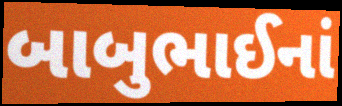
બાબુભાઈનાં